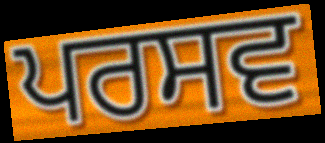
ਪਰਸਵ